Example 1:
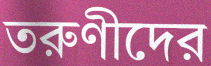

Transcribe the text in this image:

তরুণীদের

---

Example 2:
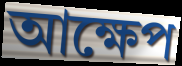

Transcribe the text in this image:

আক্ষেপ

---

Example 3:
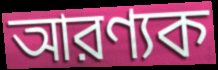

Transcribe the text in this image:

আরণ্যক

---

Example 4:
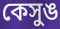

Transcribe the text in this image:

কেসুঙ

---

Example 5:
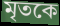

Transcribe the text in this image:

মৃতকে